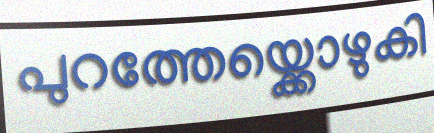
പുറത്തേയ്ക്കൊഴുകി